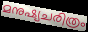
മനുഷ്യചരിത്രം